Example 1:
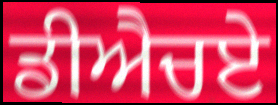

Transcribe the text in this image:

ਡੀਐਚਏ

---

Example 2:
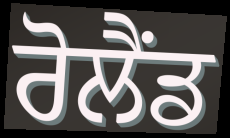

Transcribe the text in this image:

ਰੋਲੈਂਡ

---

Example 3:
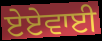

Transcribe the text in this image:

ਏਏਵਾਈ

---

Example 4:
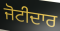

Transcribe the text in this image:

ਜੋਟੀਦਾਰ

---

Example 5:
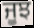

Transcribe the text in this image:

ਜੂਝ